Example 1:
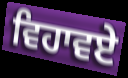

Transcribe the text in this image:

ਵਿਹਾਵਏ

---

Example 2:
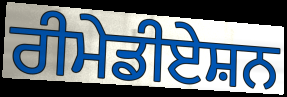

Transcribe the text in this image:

ਰੀਮੇਡੀਏਸ਼ਨ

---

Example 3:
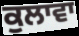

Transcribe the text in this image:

ਕੁਲਾਵਾ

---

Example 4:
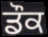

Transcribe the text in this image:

ਡੌਕ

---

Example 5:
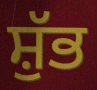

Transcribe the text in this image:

ਸ਼ੁੱਭ